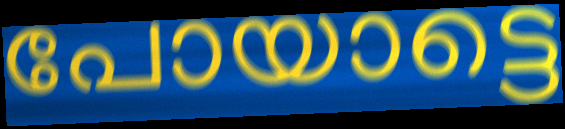
പോയാട്ടെ